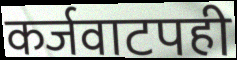
कर्जवाटपही